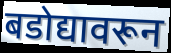
बडोद्यावरून